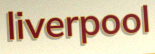
liverpool